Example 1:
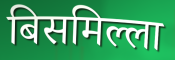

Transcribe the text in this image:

बिसमिल्ला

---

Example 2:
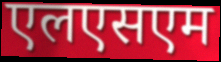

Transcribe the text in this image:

एलएसएम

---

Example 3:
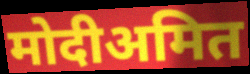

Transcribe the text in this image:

मोदीअमित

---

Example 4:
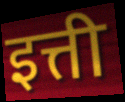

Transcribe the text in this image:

इत्ती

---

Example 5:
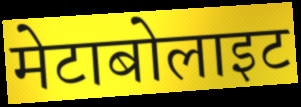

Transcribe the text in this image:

मेटाबोलाइट